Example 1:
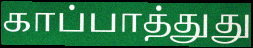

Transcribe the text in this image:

காப்பாத்துது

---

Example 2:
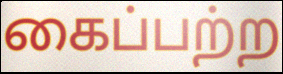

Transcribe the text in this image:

கைப்பற்ற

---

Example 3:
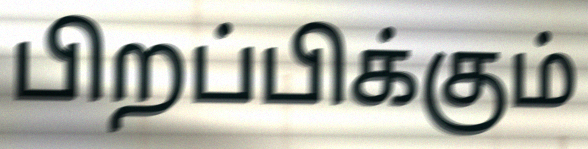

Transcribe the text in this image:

பிறப்பிக்கும்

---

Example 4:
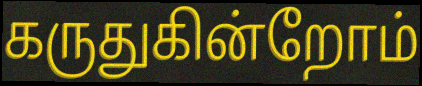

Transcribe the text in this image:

கருதுகின்றோம்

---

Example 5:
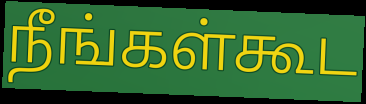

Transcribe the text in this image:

நீங்கள்கூட